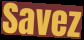
Savez